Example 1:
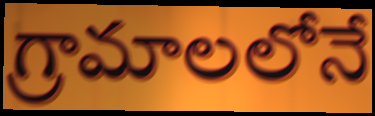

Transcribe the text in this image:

గ్రామాలలోనే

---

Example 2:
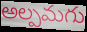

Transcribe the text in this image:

అల్పమగు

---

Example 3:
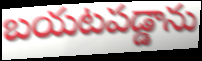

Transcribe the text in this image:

బయటపడ్డాను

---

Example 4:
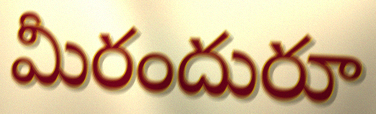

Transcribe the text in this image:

మీరందురూ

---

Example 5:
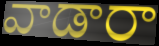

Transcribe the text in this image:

వాడారా